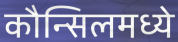
कौन्सिलमध्ये